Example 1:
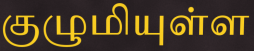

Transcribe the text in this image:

குழுமியுள்ள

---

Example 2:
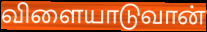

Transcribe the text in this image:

விளையாடுவான்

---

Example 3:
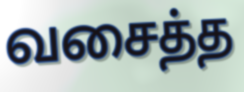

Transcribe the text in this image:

வசைத்த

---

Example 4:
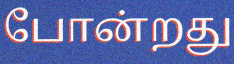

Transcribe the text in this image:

போன்றது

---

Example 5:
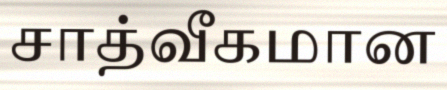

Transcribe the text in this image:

சாத்வீகமான